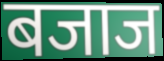
बजाज